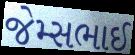
જેમ્સભાઈ